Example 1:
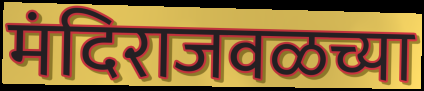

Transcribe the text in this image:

मंदिराजवळच्या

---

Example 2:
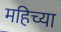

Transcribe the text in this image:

महिच्या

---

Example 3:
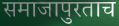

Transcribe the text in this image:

समाजापुरताच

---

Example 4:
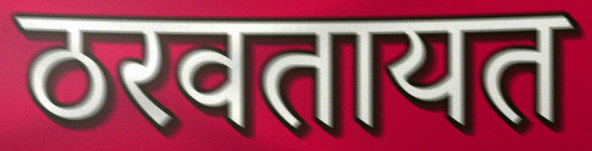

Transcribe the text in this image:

ठरवतायत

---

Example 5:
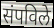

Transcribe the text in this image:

संपविले